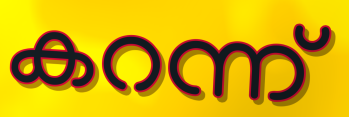
കറന്ന്